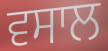
ਵਸਾਲ